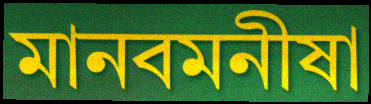
মানবমনীষা